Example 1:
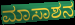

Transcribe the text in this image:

ಮಾಸಾಶನ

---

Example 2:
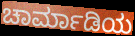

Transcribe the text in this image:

ಚಾರ್ಮಾಡಿಯ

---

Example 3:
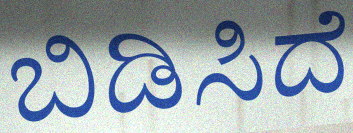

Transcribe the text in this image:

ಬಿಡಿಸಿದೆ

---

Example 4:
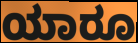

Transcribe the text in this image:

ಯಾರೂ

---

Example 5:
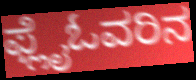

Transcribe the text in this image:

ಫ್ಲೈಓವರಿನ